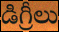
డిగ్రీలు